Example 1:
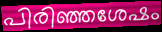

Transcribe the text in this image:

പിരിഞ്ഞശേഷം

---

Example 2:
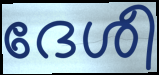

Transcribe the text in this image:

ദേശീ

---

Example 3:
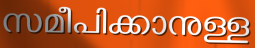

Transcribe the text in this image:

സമീപിക്കാനുള്ള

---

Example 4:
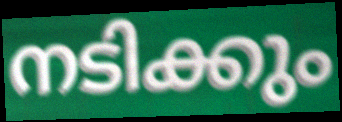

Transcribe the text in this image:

നടിക്കും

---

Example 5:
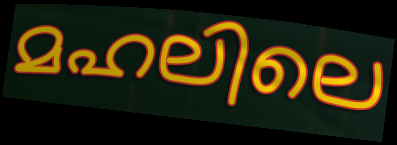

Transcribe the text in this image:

മഹലിലെ